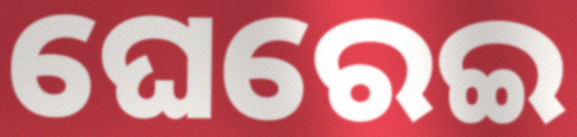
ଘେରେଇ